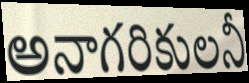
అనాగరికులనీ